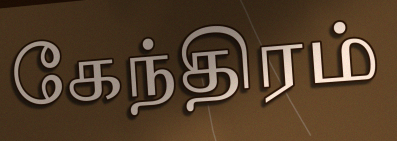
கேந்திரம்